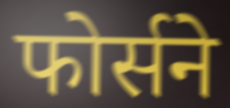
फोर्सने